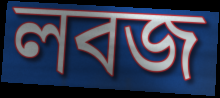
লবজ